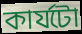
কাৰ্যটো